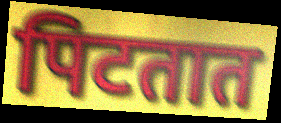
पिटतात